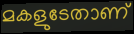
മകളുടേതാണ്